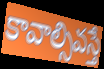
కావాల్సివస్తే